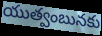
యుత్వంబునకు